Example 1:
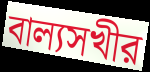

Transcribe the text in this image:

বাল্যসখীর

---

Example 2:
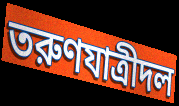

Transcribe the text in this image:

তরুণযাত্রীদল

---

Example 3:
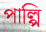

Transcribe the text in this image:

পাল্পি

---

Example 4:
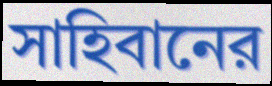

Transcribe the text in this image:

সাহিবানের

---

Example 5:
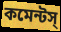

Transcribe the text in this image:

কমেন্টস্